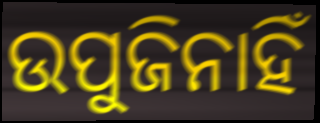
ଉପୁଜିନାହିଁ